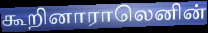
கூறினாராலெனின்